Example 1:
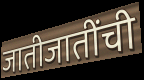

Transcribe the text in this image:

जातीजातींची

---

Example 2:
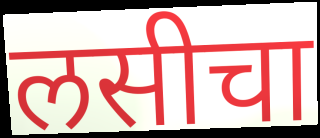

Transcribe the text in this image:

लसीचा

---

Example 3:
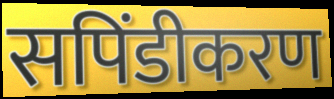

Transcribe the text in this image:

सपिंडीकरण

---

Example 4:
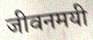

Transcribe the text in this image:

जीवनमयी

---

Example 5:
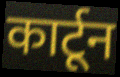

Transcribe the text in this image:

कार्टून